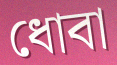
ধোবা